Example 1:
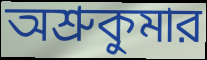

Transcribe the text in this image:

অশ্রুকুমার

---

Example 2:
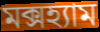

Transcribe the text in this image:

মক্সহ্যাম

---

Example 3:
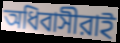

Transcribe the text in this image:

অধিবাসীরাই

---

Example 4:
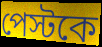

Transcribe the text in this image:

পেস্টকে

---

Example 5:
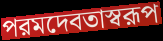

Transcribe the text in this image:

পরমদেবতাস্বরূপ